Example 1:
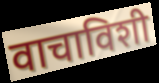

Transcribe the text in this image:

वाचाविशी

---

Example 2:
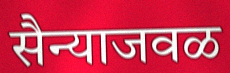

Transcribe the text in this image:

सैन्याजवळ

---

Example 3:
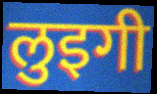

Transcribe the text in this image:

लुइगी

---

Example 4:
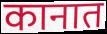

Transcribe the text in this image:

कानात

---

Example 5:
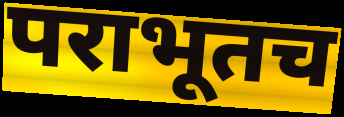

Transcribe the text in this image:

पराभूतच